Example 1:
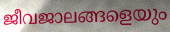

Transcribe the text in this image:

ജീവജാലങ്ങളെയും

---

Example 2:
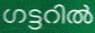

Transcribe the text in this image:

ഗട്ടറിൽ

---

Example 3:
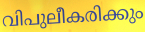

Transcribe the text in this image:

വിപുലീകരിക്കും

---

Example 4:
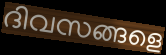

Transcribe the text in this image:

ദിവസങ്ങളെ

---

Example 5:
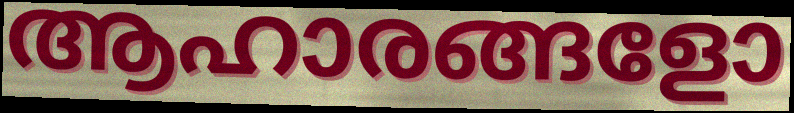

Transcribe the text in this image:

ആഹാരങ്ങളോ